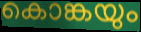
കൊങ്കയും